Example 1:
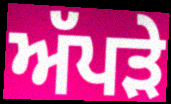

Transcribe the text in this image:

ਅੱਪੜੇ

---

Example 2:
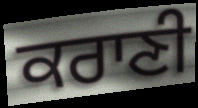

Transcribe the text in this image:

ਕਰਾਣੀ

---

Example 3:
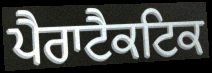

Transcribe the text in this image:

ਪੈਰਾਟੈਕਟਿਕ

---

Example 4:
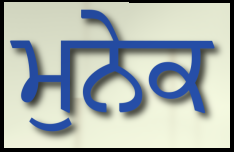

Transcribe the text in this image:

ਮੁਨੇਕ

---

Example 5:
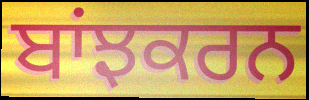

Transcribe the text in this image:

ਬਾਂਝਕਰਨ